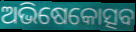
ଅଭିଷେକୋତ୍ସବ